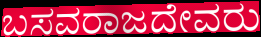
ಬಸವರಾಜದೇವರು